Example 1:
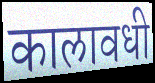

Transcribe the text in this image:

कालावधी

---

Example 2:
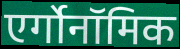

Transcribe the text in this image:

एर्गोनॉमिक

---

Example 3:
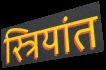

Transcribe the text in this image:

स्त्रियांत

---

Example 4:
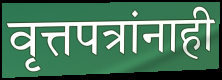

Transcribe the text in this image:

वृत्तपत्रांनाही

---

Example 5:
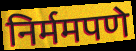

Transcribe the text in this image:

निर्ममपणे